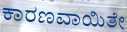
ಕಾರಣವಾಯಿತೇ